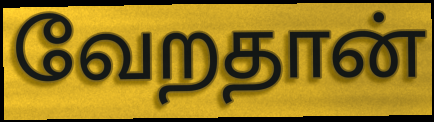
வேறதான்